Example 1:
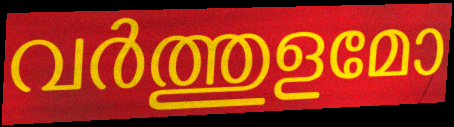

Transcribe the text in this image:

വർത്തുളമോ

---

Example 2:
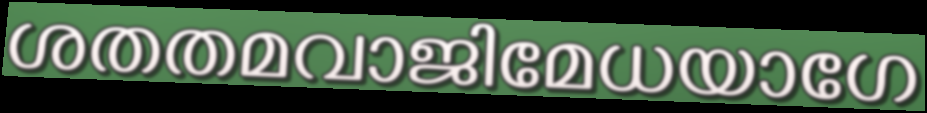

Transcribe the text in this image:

ശതതമവാജിമേധയാഗേ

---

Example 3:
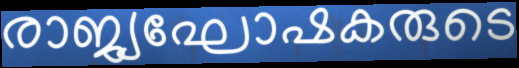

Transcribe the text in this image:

രാജ്യഘോഷകരുടെ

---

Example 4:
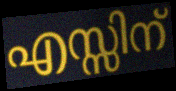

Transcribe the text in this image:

എസ്സിന്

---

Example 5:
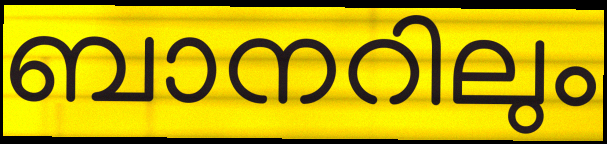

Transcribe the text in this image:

ബാനറിലും